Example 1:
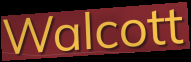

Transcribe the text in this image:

Walcott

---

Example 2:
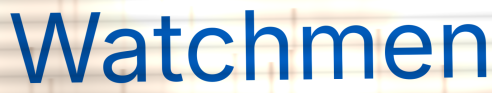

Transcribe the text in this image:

Watchmen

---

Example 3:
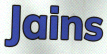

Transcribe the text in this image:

Jains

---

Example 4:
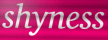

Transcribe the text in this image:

shyness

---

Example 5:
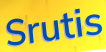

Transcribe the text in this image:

Srutis